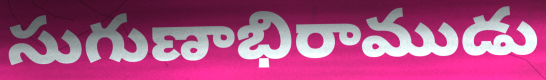
సుగుణాభిరాముడు